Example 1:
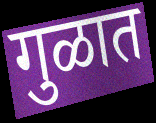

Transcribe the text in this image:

गुळात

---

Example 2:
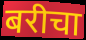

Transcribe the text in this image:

बरीचा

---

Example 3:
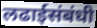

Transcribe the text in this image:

लढाईसंबंधी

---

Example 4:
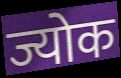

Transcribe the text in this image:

ज्योक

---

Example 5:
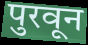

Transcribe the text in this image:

पुरवून